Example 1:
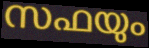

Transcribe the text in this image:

സഫയും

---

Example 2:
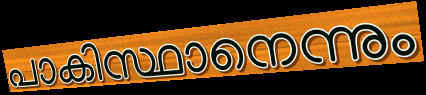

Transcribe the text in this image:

പാകിസ്ഥാനെന്നും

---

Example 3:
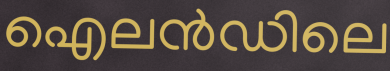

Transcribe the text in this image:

ഐലൻഡിലെ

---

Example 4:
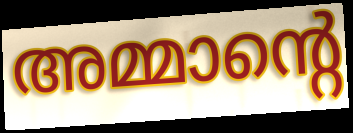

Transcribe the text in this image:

അമ്മാന്റെ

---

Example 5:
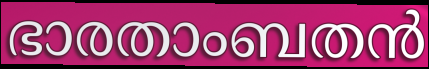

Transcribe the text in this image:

ഭാരതാംബതൻ